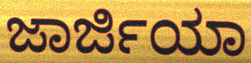
ಜಾರ್ಜಿಯಾ